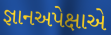
જ્ઞાનઅપેક્ષાએ